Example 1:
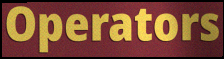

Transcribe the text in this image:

Operators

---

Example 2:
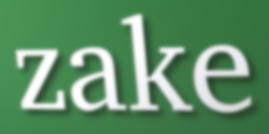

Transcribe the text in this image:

zake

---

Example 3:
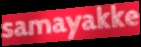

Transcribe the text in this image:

samayakke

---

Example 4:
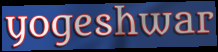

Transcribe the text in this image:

yogeshwar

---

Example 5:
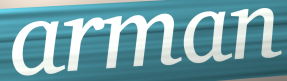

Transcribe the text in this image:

arman